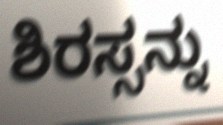
ಶಿರಸ್ಸನ್ನು